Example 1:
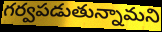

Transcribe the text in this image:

గర్వపడుతున్నామని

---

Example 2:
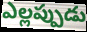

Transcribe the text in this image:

ఎల్లప్పుడు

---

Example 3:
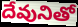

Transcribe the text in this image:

దేవునితో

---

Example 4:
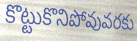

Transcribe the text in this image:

కొట్టుకొనిపోవువరకు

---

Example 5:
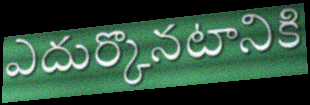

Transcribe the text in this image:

ఎదుర్కొనటానికి